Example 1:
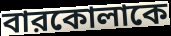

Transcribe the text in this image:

বারকোলাকে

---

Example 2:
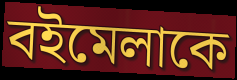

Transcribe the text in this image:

বইমেলাকে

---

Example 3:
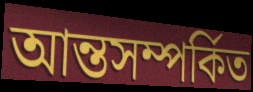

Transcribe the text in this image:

আন্তসম্পর্কিত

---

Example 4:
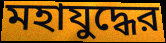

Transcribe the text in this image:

মহাযুদ্ধের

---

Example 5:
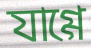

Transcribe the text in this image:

যাগ্গে